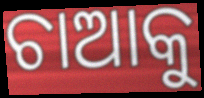
ଚାଆକୁ